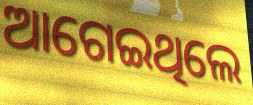
ଆଗେଇଥିଲେ